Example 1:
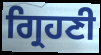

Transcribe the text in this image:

ਗ੍ਰਿਹਣੀ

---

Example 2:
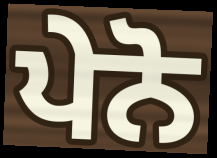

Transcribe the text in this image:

ਪੇਨੋ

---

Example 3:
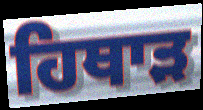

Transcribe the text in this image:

ਹਿਥਾੜ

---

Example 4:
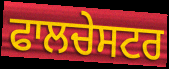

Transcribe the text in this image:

ਫਾਲਚੇਸਟਰ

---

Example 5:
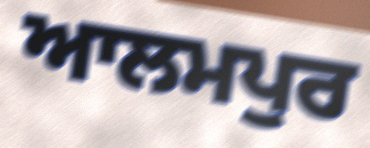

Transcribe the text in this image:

ਆਲਮਪੁਰ